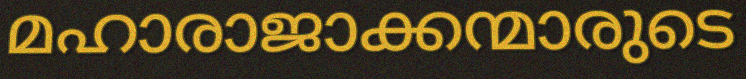
മഹാരാജാക്കന്മാരുടെ